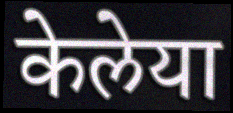
केलेया